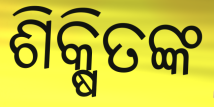
ଶିକ୍ଷିତଙ୍କ